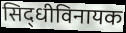
सिद्धीविनायक